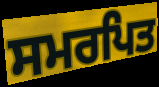
ਸਮਰਪਿਤ